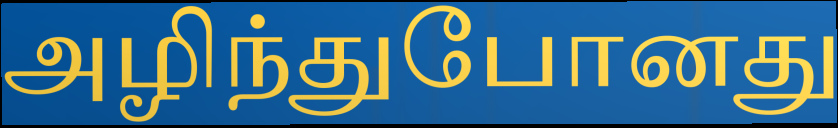
அழிந்துபோனது